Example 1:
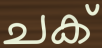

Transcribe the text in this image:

ചക്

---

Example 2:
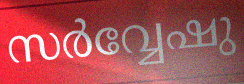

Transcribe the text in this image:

സർവ്വേഷു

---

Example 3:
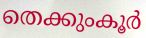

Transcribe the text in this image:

തെക്കുംകൂർ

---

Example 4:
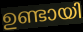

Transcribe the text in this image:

ഉണ്ടായി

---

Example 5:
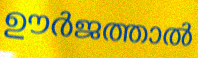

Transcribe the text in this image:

ഊർജത്താൽ